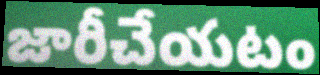
జారీచేయటం